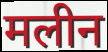
मलीन